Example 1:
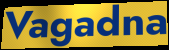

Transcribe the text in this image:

Vagadna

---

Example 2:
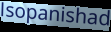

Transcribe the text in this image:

Isopanishad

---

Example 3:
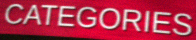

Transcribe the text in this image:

CATEGORIES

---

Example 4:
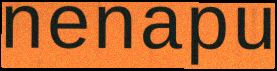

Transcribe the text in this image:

nenapu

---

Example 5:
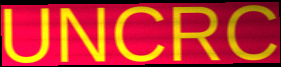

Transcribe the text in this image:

UNCRC